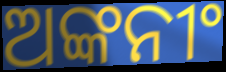
ଅଙ୍କନୀଂ